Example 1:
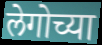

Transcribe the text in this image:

लेगोच्या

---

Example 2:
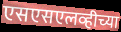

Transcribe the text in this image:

एसएसएलव्हीच्या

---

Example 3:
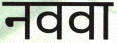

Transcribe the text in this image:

नववा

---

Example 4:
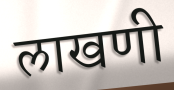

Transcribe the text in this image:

लाखणी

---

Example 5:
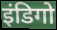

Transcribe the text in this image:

इंडिगो